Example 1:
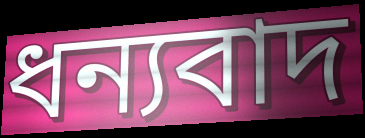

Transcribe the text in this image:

ধন্যবাদ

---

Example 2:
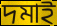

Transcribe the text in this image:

দমাই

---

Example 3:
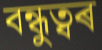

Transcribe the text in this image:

বন্ধুত্বৰ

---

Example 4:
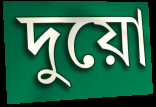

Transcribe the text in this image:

দুয়ো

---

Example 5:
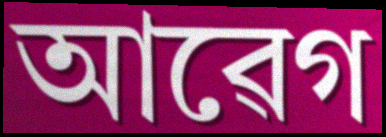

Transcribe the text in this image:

আৱেগ